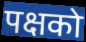
पक्षको